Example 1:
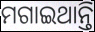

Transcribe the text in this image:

ମଗାଇଥାନ୍ତି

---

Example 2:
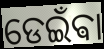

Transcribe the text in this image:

ଡେଇଁଵା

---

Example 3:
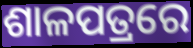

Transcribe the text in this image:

ଶାଳପତ୍ରରେ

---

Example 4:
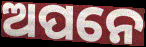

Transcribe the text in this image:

ଅପନେ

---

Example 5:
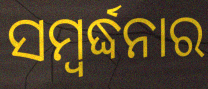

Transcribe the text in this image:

ସମ୍ବର୍ଦ୍ଧନାର